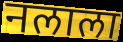
नलाला